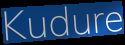
Kudure